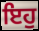
ਇਹੁ